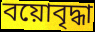
বয়োবৃদ্ধা